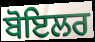
ਬੋਇਲਰ